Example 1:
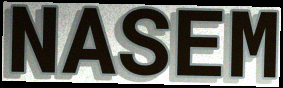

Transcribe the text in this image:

NASEM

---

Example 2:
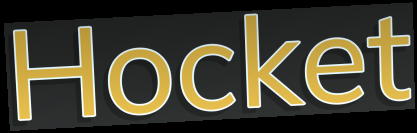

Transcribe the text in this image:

Hocket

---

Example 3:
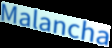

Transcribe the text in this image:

Malancha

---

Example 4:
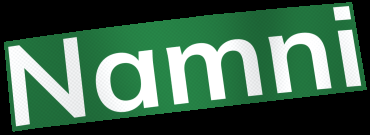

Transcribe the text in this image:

Namni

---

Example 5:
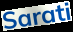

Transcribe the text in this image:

Sarati